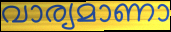
വാര്യമാണാ